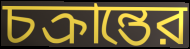
চক্রান্তের